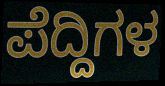
ಪೆದ್ದಿಗಳ